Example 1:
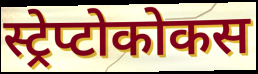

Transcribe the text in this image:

स्ट्रेप्टोकोकस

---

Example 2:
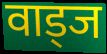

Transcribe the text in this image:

वाड्ज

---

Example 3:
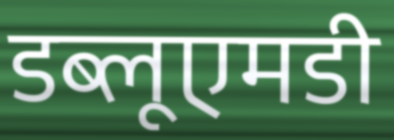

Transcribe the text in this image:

डब्लूएमडी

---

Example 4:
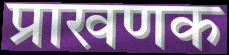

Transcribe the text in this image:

प्राखणक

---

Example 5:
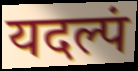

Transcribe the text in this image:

यदल्पं